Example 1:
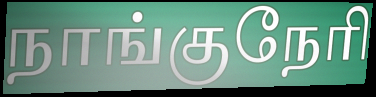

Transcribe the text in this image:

நாங்குநேரி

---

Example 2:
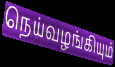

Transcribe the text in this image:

நெய்வழங்கியும்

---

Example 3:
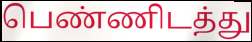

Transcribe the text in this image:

பெண்ணிடத்து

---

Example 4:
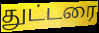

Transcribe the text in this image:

துட்டரை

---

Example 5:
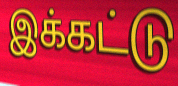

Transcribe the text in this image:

இக்கட்டு